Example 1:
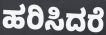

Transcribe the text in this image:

ಹರಿಸಿದರೆ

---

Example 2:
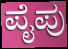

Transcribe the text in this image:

ಪೈಪು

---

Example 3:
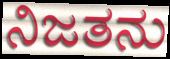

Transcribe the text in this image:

ನಿಜತನು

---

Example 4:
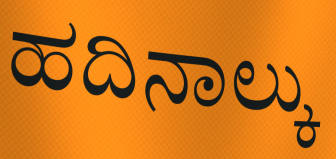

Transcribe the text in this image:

ಹದಿನಾಲ್ಕು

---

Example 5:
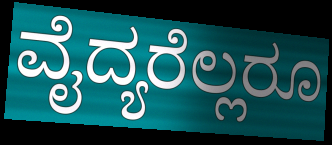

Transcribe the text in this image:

ವೈದ್ಯರೆಲ್ಲರೂ